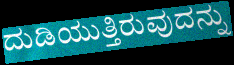
ದುಡಿಯುತ್ತಿರುವುದನ್ನು